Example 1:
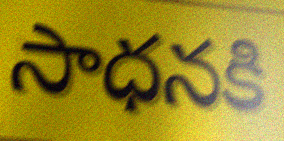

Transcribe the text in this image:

సాధనకి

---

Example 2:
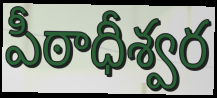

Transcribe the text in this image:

పీఠాధీశ్వర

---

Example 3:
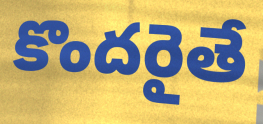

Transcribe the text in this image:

కొందరైతే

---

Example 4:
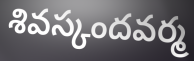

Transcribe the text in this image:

శివస్కందవర్మ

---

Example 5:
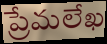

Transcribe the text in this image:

ప్రేమలేఖ